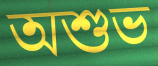
অশুভ